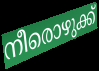
നീരൊഴുക്ക്